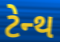
ટેન્થ